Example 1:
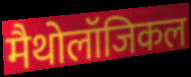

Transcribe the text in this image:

मैथोलॉजिकल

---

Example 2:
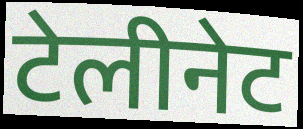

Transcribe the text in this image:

टेलीनेट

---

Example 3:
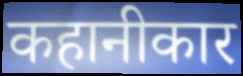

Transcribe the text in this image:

कहानीकार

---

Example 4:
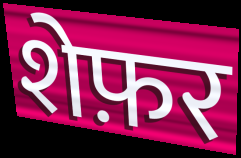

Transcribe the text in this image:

शेफ़र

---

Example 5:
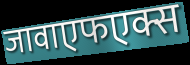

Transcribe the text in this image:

जावाएफएक्स